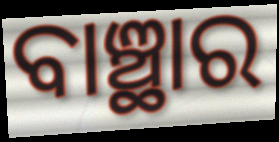
ବାଞ୍ଛାର